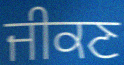
ਜੀਕਣ